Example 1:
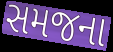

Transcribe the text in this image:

સમજના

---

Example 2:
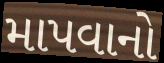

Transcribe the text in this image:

માપવાનો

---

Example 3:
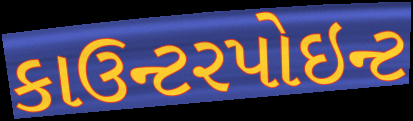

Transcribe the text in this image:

કાઉન્ટરપોઇન્ટ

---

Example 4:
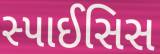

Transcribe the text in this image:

સ્પાઈસિસ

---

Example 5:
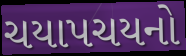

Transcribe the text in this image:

ચયાપચયનો